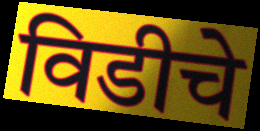
विडीचे